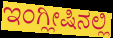
ಇಂಗ್ಲೀಷಿನಲ್ಲಿ